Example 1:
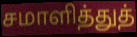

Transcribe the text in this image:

சமாளித்துத்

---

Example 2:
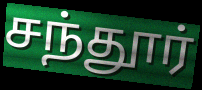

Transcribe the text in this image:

சந்தூர்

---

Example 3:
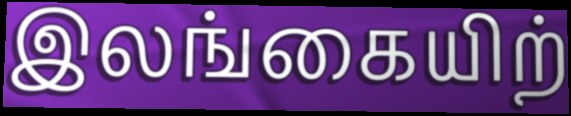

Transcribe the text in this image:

இலங்கையிற்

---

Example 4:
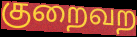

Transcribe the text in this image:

குறைவற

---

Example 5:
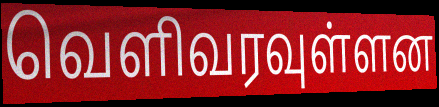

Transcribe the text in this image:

வெளிவரவுள்ளன